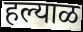
हल्याळ